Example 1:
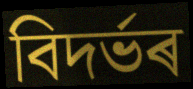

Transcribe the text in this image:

বিদৰ্ভৰ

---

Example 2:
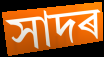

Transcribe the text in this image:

সাদৰ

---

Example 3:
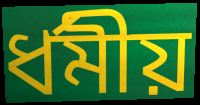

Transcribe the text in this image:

ৰ্ধমীয়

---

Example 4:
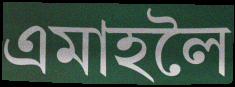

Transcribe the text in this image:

এমাহলৈ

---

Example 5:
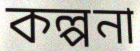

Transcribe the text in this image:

কল্পনা